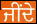
ਜੀਂਦੇ